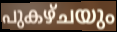
പുകഴ്ചയും